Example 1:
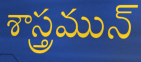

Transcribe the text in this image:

శాస్త్రమున్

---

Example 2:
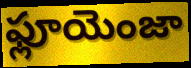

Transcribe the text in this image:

ఫ్లూయెంజా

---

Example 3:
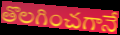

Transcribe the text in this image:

తొలగించగానే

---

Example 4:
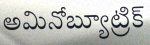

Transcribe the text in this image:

అమినోబ్యూట్రిక్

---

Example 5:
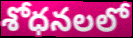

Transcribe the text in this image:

శోధనలలో